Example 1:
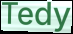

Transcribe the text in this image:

Tedy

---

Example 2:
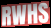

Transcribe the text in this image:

RWHS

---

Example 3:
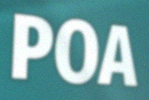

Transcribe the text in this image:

POA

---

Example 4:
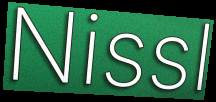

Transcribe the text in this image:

Nissl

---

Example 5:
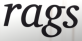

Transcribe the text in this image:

rags